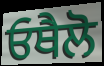
ਓਥੈਲੋ